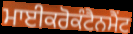
ਮਾਈਕਰੋਕੰਟੈਨਮੈਂਟ